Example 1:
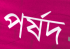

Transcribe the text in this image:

পর্ষদ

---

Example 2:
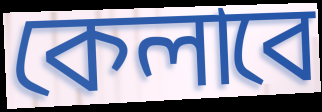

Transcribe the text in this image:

কেলাবে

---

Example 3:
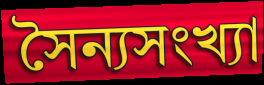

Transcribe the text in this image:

সৈন্যসংখ্যা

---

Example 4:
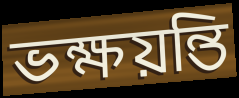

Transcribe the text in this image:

ভক্ষয়ন্তি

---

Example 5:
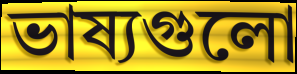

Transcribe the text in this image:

ভাষ্যগুলো